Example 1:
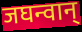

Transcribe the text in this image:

जघन्वान्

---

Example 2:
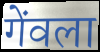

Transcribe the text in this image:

गेंवला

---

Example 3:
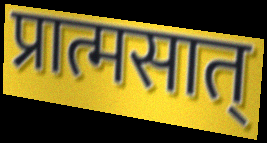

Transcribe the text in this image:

प्रात्मसात्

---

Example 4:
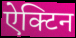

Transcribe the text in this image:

ऐक्टिन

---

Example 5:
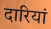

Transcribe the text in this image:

दारियां